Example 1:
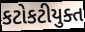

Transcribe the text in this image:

કટોકટીયુક્ત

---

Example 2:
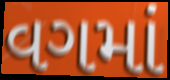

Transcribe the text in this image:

વગમાં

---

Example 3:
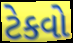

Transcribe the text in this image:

ટેકવો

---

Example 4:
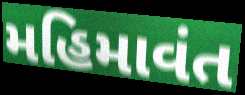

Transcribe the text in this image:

મહિમાવંત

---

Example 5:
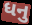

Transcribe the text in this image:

ધનુ